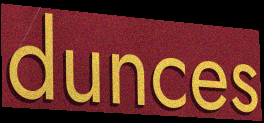
dunces